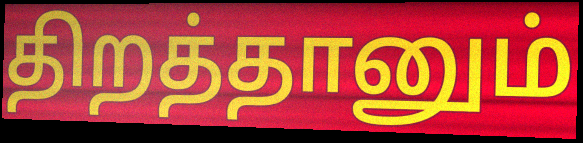
திறத்தானும்